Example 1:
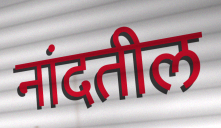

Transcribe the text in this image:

नांदतील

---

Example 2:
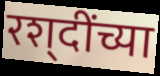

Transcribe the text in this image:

रश्दींच्या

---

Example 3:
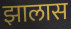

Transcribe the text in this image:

झालास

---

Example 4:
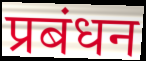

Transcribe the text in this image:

प्रबंधन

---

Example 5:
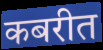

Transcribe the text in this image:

कबरीत